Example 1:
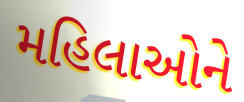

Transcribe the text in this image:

મહિલાઓને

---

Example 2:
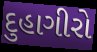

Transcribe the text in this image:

દુહાગીરો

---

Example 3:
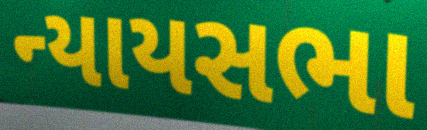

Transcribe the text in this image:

ન્યાયસભા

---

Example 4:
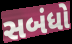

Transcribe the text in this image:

સબંધો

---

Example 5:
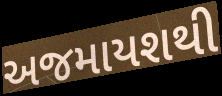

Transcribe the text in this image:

અજમાયશથી